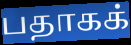
பதாகக்